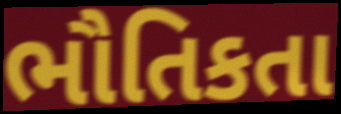
ભૌતિકતા